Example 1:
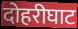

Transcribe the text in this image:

दोहरीघाट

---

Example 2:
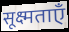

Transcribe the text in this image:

सूक्ष्मताएँ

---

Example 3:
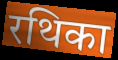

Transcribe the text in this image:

रथिका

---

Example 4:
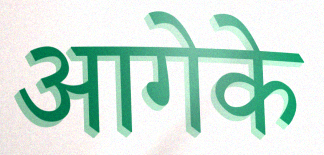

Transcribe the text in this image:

आगेके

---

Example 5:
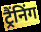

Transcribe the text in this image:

ट्रैंनिंग